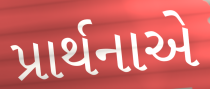
પ્રાર્થનાએ